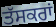
ਤੱਸਕਰਾਂ